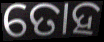
ତୋହ